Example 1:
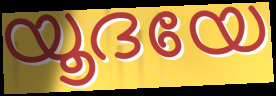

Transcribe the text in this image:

യൂദയേ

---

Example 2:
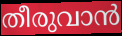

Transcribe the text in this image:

തീരുവാൻ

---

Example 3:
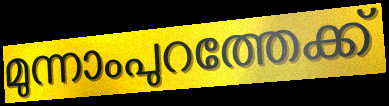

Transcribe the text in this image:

മുന്നാംപുറത്തേക്ക്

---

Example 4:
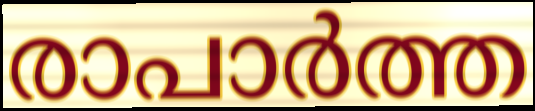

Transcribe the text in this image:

രാപാർത്ത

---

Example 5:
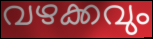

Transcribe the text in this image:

വഴക്കവും